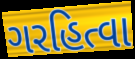
ગરહિત્વા